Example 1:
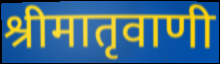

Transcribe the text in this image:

श्रीमातृवाणी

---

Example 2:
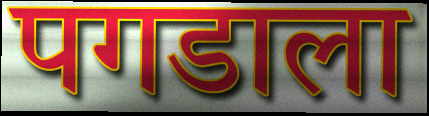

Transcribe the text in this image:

पगडाला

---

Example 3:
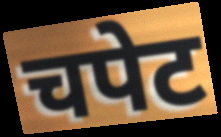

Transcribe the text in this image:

चपेट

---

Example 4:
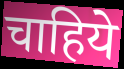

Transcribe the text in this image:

चाहिये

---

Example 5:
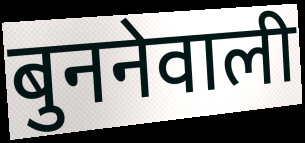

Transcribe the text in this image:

बुननेवाली